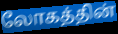
லோகத்தின்